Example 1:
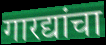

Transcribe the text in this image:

गारद्यांचा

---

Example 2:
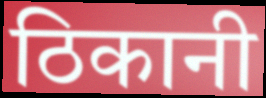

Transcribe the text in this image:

ठिकानी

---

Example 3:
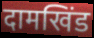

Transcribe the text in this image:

दामखिंड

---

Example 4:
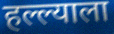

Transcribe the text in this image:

हल्ल्याला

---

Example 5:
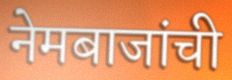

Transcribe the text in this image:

नेमबाजांची